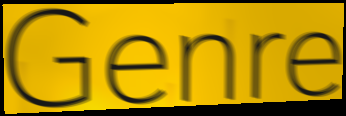
Genre